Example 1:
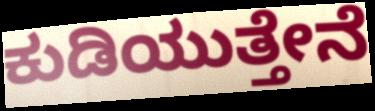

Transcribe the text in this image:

ಕುಡಿಯುತ್ತೇನೆ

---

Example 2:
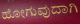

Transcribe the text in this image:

ಹೋಗುವುದಾಗಿ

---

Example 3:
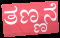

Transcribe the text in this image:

ತಣ್ಣನೆ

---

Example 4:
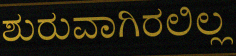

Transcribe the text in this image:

ಶುರುವಾಗಿರಲಿಲ್ಲ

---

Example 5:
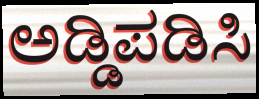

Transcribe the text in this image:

ಅಡ್ಡಿಪಡಿಸಿ